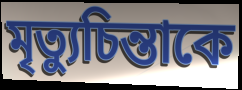
মৃত্যুচিন্তাকে